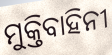
ମୁକ୍ତିବାହିନୀ